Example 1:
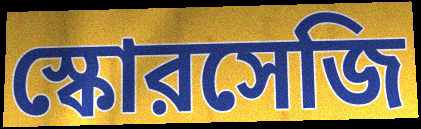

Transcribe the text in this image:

স্কোরসেজি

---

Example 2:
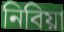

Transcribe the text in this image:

নিবিয়া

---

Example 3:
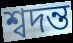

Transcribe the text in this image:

শ্বদন্ত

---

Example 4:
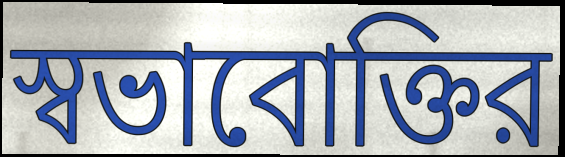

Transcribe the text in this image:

স্বভাবোক্তির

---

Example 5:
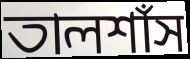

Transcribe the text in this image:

তালশাঁস